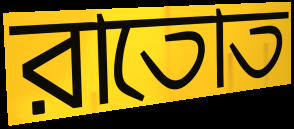
রাতোত